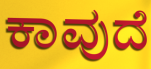
ಕಾವುದೆ